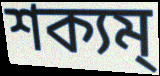
শক্যম্